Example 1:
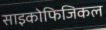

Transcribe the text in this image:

साइकोफिजिकल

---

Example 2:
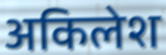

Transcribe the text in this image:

अकिलेश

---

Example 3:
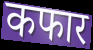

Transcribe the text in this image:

कफार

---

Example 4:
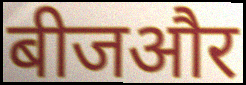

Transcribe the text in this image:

बीजऔर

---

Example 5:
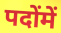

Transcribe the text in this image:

पदोंमें